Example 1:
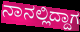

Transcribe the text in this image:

ನಾನಲ್ಲಿದ್ದಾಗ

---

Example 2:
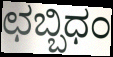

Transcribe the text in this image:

ಛಬ್ಬಿಧಂ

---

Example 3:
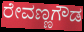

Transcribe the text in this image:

ರೇವಣ್ಣಗೌಡ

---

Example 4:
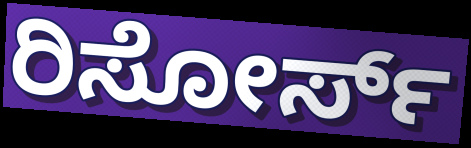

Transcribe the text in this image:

ರಿಸೋರ್ಸ್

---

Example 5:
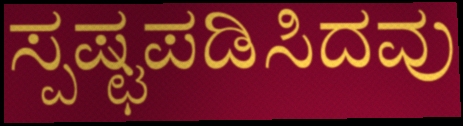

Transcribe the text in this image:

ಸ್ಪಷ್ಟಪಡಿಸಿದವು